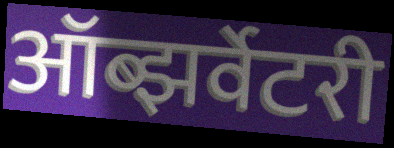
ऑब्झर्वेटरी